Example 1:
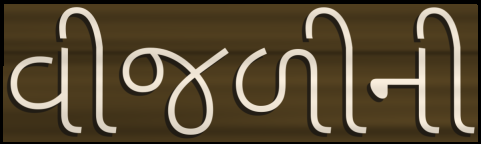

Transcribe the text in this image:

વીજળીની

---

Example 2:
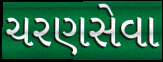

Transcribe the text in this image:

ચરણસેવા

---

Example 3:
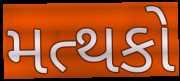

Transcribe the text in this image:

મત્થકો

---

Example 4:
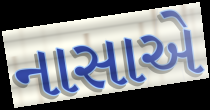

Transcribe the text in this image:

નાસાએ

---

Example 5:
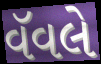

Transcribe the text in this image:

વૅવલે